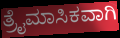
ತ್ರೈಮಾಸಿಕವಾಗಿ